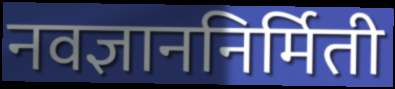
नवज्ञाननिर्मिती